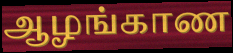
ஆழங்காண